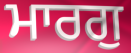
ਮਾਰਗੁ